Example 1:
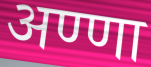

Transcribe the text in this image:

अण्णा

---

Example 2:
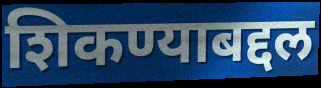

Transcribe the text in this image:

शिकण्याबद्दल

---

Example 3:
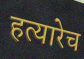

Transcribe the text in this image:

हत्यारेच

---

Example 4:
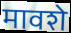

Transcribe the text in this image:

मावशे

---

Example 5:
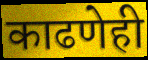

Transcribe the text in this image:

काढणेही